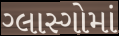
ગ્લાસ્ગોમાં